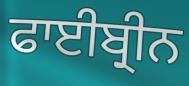
ਫਾਈਬ੍ਰੀਨ